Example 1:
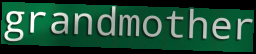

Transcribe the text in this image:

grandmother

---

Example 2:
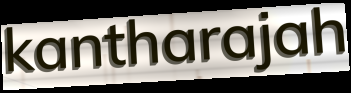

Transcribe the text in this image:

kantharajah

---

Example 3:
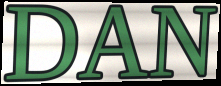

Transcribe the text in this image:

DAN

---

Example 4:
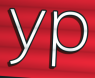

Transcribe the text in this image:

yp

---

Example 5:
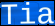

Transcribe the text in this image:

Tia